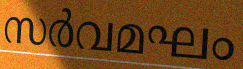
സർവമഘം